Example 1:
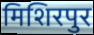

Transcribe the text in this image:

मिशिरपुर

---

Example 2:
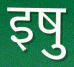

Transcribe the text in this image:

इषु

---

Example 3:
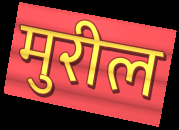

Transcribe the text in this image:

मुरील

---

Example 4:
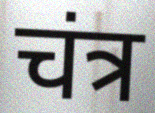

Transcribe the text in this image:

चंत्र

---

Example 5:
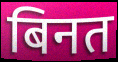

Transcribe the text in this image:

बिनत